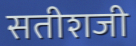
सतीशजी